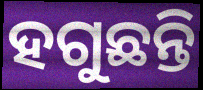
ହଗୁଛନ୍ତି